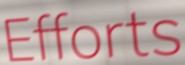
Efforts